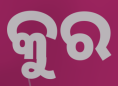
କୁର